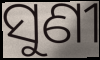
ସୁଣୀ